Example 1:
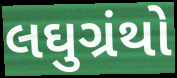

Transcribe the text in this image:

લઘુગ્રંથો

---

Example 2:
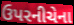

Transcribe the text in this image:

ઉપરનીચેના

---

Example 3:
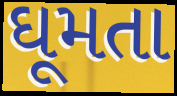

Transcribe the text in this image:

ઘૂમતા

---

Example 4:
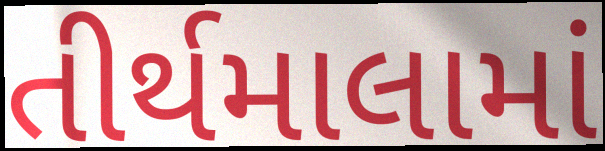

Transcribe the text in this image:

તીર્થમાલામાં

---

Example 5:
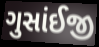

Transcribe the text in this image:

ગુસાંઈજી